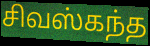
சிவஸ்கந்த